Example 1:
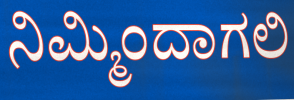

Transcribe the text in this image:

ನಿಮ್ಮಿಂದಾಗಲಿ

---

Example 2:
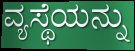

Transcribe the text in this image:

ವ್ಯಸ್ಥೆಯನ್ನು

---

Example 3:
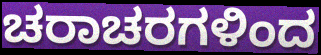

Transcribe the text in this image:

ಚರಾಚರಗಳಿಂದ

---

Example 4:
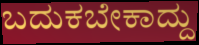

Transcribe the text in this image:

ಬದುಕಬೇಕಾದ್ದು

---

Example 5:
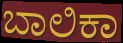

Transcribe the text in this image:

ಬಾಲಿಕಾ